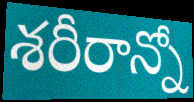
శరీరాన్నో